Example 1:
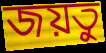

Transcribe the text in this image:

জয়তু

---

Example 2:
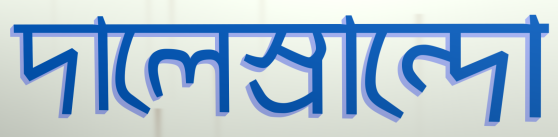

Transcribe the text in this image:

দালেস্রান্দো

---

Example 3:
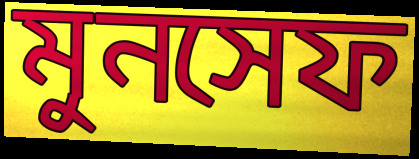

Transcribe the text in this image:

মুনসেফ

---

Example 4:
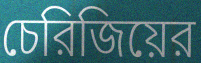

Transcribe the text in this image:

চেরিজিয়ের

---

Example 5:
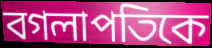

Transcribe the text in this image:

বগলাপতিকে